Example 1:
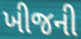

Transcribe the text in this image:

ખીજની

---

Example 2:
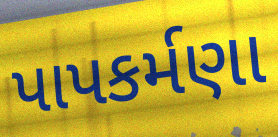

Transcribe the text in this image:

પાપકર્મણા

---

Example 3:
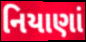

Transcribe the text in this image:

નિયાણાં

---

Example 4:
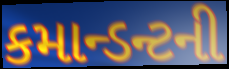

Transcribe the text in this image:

કમાન્ડન્ટની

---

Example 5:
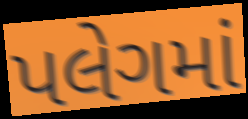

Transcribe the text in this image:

પલેગમાં